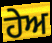
ਹੇਅ